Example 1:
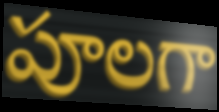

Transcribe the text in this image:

పూలగా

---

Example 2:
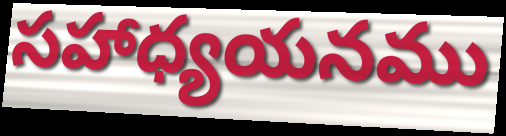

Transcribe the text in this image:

సహాధ్యయనము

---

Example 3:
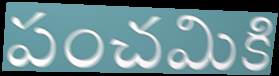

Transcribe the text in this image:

పంచమికి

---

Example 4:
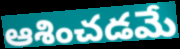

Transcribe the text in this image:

ఆశించడమే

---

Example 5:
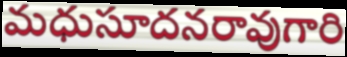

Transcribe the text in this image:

మధుసూదనరావుగారి